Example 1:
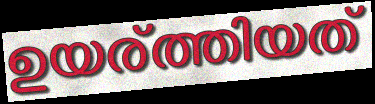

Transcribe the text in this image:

ഉയര്ത്തിയത്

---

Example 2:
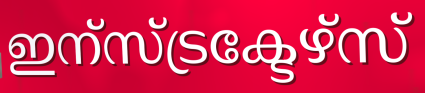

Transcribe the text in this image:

ഇന്സ്ട്രക്ടേഴ്സ്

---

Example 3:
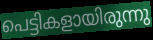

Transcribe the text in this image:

പെട്ടികളായിരുന്നു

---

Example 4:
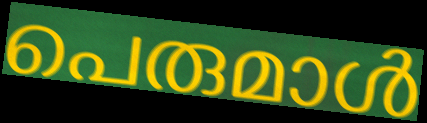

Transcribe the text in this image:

പെരുമാൾ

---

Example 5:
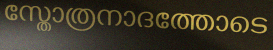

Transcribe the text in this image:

സ്തോത്രനാദത്തോടെ